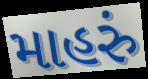
માહરું